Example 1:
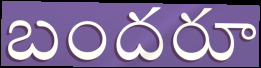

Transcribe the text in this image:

బందరూ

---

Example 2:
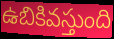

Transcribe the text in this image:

ఉబికివస్తుంది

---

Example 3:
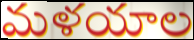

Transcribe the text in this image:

మళయాల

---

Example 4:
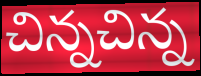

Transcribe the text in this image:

చిన్నచిన్న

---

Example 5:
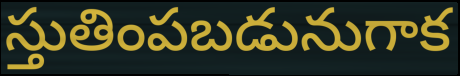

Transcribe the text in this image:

స్తుతింపబడునుగాక